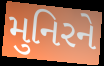
મુનિરને